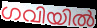
ഗവിയിൽ